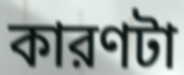
কারণটা